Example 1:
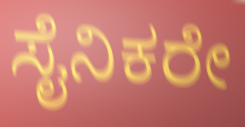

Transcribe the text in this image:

ಸೈನಿಕರೇ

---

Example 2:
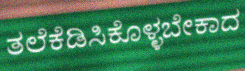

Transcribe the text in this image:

ತಲೆಕೆಡಿಸಿಕೊಳ್ಳಬೇಕಾದ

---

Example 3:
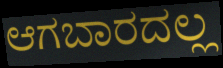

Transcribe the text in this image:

ಆಗಬಾರದಲ್ಲ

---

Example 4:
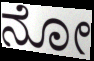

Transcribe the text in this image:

ನೋ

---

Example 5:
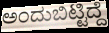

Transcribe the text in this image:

ಅಂದುಬಿಟ್ಟಿದ್ದೆ